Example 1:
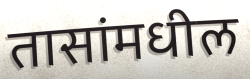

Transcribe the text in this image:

तासांमधील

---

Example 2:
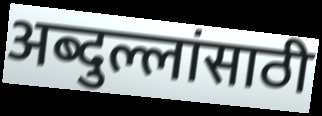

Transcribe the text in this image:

अब्दुल्लांसाठी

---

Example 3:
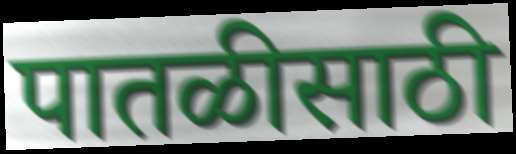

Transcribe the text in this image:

पातळीसाठी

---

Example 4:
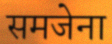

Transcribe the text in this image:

समजेना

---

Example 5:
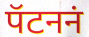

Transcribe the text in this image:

पॅटननं